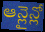
ఆన్లైన్లో